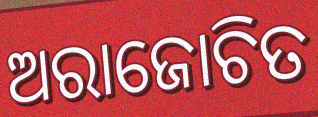
ଅରାଜୋଚିତ